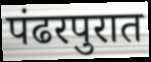
पंढरपुरात